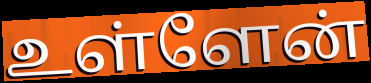
உள்ளேன்